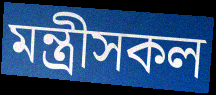
মন্ত্ৰীসকল